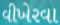
વીખેરવા